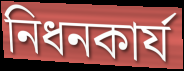
নিধনকার্য